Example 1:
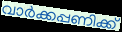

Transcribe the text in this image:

വാർക്കപ്പണിക്ക്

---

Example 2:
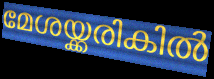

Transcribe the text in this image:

മേശയ്ക്കരികിൽ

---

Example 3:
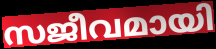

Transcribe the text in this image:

സജീവമായി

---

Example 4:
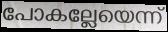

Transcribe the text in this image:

പോകല്ലേയെന്ന്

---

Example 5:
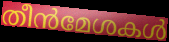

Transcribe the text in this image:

തീൻമേശകൾ